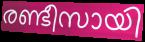
രണ്ടീസായി